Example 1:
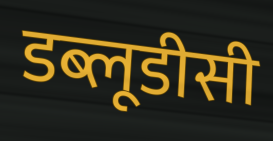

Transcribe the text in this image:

डब्लूडीसी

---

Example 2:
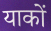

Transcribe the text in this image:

याकों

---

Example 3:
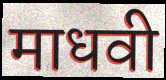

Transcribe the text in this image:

माधवी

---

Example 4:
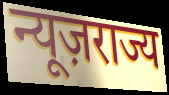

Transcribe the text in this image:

न्यूज़राज्य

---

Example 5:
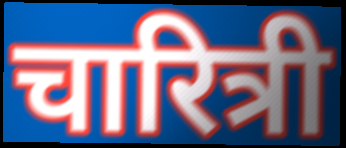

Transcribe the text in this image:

चारित्री